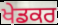
ਖੇਡਕਰ